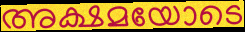
അക്ഷമയോടെ